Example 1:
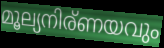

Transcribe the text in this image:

മൂല്യനിര്ണയവും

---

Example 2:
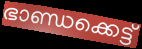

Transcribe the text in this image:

ഭാണ്ഡക്കെട്ട്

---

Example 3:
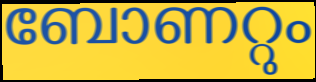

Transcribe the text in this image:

ബോണറ്റും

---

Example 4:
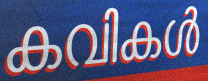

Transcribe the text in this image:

കവികൾ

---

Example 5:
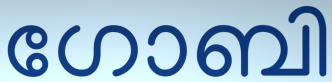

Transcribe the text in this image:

ഗോബി